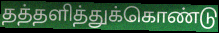
தத்தளித்துக்கொண்டு